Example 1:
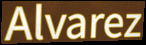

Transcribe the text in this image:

Alvarez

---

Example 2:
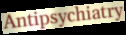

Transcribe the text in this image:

Antipsychiatry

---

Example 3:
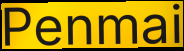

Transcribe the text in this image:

Penmai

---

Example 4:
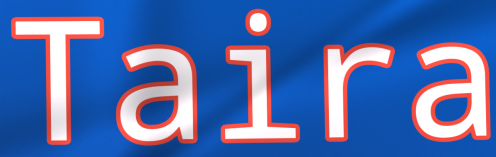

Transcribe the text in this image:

Taira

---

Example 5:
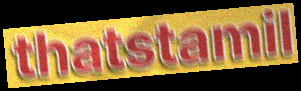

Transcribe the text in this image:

thatstamil